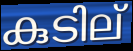
കുടില്